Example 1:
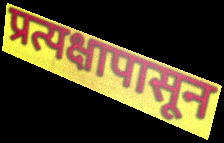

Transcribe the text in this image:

प्रत्यक्षापासून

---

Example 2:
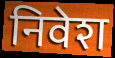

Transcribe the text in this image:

निवेश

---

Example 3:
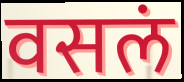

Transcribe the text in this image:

वसलं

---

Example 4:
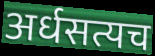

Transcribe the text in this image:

अर्धसत्यच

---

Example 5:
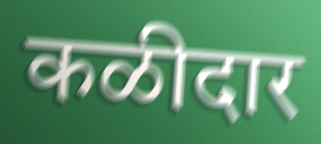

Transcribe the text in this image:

कळीदार